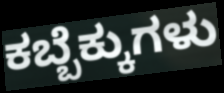
ಕಬ್ಬೆಕ್ಕುಗಳು